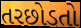
તરછોડતો